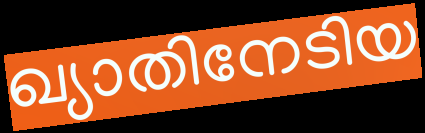
ഖ്യാതിനേടിയ